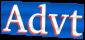
Advt